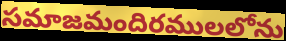
సమాజమందిరములలోను